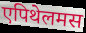
एपिथेलमस